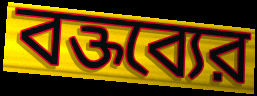
বক্তব্যের